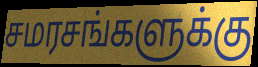
சமரசங்களுக்கு